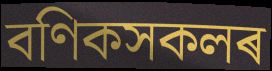
বণিকসকলৰ